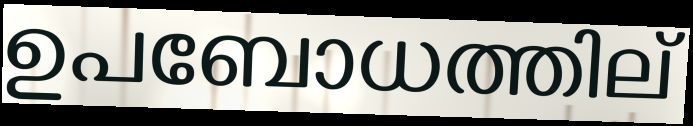
ഉപബോധത്തില്